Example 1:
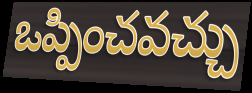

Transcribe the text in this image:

ఒప్పించవచ్చు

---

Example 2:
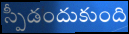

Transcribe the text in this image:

స్పీడందుకుంది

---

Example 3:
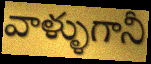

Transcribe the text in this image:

వాళ్ళుగానీ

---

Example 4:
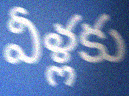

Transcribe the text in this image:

వీళ్లకు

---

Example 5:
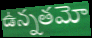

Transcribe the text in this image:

ఉన్నతమో